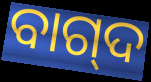
ବାଗ୍‌ଦ